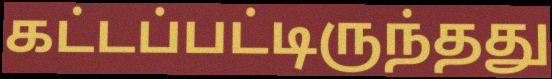
கட்டப்பட்டிருந்தது